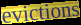
evictions